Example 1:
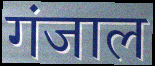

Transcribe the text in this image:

गंजाल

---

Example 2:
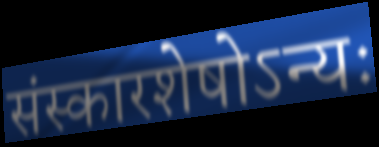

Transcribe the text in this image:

संस्कारशेषोऽन्यः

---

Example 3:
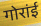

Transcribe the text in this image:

गोरांई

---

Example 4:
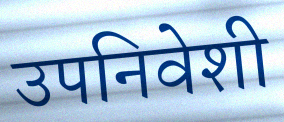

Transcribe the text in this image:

उपनिवेशी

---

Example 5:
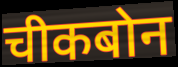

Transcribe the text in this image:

चीकबोन